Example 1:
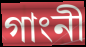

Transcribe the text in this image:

গাংনী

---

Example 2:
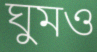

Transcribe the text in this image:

ঘুমও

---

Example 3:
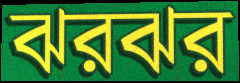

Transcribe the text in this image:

ঝরঝর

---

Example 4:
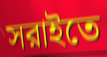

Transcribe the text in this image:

সরাইতে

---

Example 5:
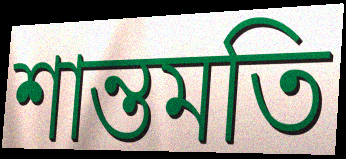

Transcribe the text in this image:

শান্তমতি